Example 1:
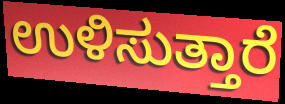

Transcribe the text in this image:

ಉಳಿಸುತ್ತಾರೆ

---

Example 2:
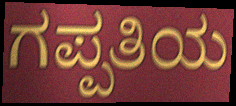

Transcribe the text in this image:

ಗಪ್ಪತಿಯ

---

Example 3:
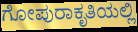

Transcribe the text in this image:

ಗೋಪುರಾಕೃತಿಯಲ್ಲಿ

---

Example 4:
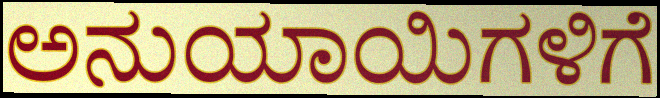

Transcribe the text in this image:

ಅನುಯಾಯಿಗಳಿಗೆ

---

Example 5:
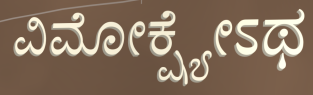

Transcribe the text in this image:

ವಿಮೋಕ್ಷ್ಯೇಽಥ